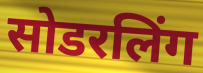
सोडरलिंग